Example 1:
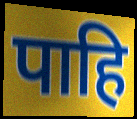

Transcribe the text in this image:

पाहि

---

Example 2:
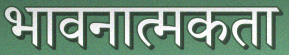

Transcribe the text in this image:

भावनात्मकता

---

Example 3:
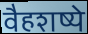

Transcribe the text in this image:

वैहशष्ये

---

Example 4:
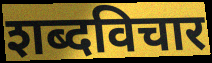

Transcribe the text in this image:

शब्दविचार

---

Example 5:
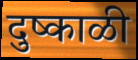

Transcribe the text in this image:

दुष्काळी